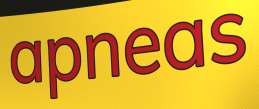
apneas